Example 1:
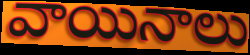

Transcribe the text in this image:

వాయినాలు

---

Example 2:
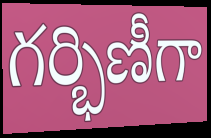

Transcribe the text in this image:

గర్భిణీగా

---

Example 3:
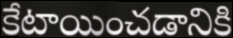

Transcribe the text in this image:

కేటాయించడానికి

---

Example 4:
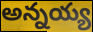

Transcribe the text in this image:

అన్నయ్య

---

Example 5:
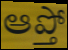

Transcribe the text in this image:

ఆప్తో